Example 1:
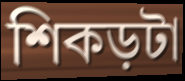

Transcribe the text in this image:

শিকড়টা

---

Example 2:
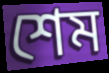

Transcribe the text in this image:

শেম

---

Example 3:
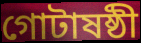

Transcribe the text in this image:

গোটাষষ্ঠী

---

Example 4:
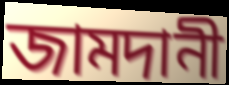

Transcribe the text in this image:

জামদানী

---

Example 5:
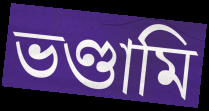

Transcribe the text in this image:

ভণ্ডামি